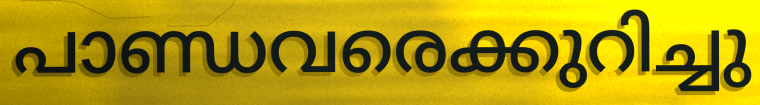
പാണ്ഡവരെക്കുറിച്ചു